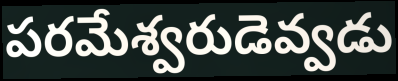
పరమేశ్వరుడెవ్వడు